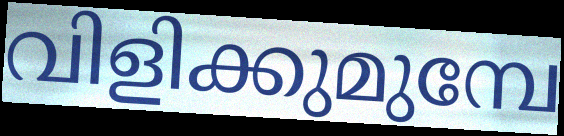
വിളിക്കുമുമ്പേ